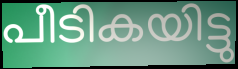
പീടികയിട്ടു